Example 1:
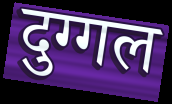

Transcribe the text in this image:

दुग्गल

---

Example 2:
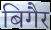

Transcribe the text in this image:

बिगैर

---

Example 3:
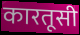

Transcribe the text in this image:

कारतूसी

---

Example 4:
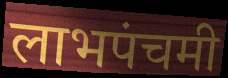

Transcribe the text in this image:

लाभपंचमी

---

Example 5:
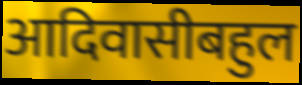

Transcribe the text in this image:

आदिवासीबहुल